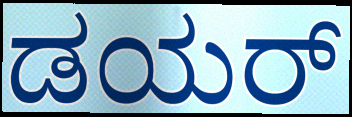
ಡಯರ್